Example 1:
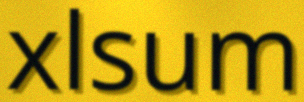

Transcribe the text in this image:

xlsum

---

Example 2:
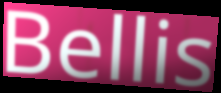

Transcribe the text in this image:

Bellis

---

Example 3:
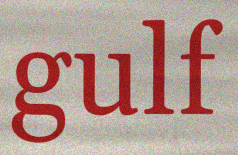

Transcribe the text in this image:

gulf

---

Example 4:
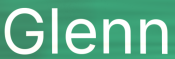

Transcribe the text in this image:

Glenn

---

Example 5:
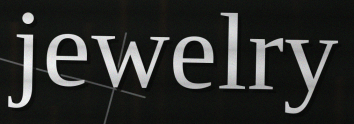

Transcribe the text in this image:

jewelry